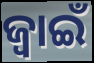
ଜ୍ଵାଇଁ